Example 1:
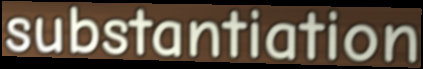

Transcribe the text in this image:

substantiation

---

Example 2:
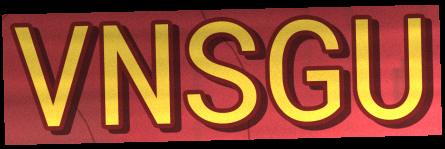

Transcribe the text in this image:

VNSGU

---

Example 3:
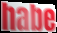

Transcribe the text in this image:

habe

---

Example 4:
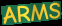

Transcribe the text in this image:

ARMS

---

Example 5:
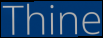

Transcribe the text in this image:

Thine